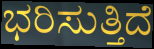
ಭರಿಸುತ್ತಿದೆ